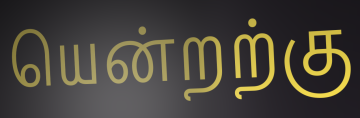
யென்றற்கு